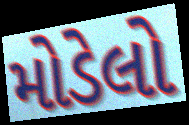
મોડેલો